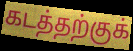
கடத்தற்குக்